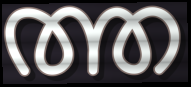
ത്ത